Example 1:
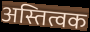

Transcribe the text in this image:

अस्तित्वक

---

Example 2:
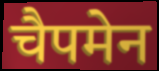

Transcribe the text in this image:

चैपमेन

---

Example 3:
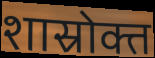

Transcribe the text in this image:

शास्रोक्त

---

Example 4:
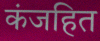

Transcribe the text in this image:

कंजहित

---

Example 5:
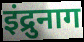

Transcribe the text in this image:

इंद्रुनाग